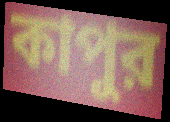
কাপুর